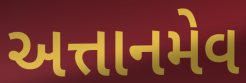
અત્તાનમેવ